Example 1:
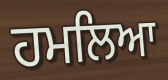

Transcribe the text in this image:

ਹਮਲਿਆ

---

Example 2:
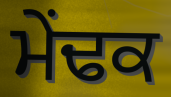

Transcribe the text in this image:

ਮੇਂਢਕ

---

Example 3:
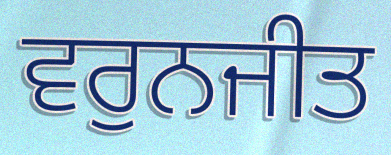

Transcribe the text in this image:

ਵਰੁਨਜੀਤ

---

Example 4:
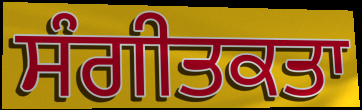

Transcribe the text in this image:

ਸੰਗੀਤਕਤਾ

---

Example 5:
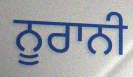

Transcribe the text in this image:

ਨੂਰਾਨੀ